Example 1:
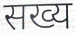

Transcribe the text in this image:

सख्य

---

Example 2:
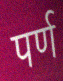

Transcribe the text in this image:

पर्ण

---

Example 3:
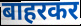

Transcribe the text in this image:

बाहरकर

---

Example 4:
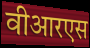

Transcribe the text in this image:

वीआरएस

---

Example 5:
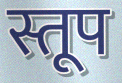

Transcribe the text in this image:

स्तूप